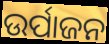
ଉର୍ପାଜନ